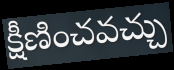
క్షీణించవచ్చు